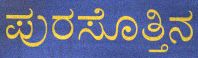
ಪುರಸೊತ್ತಿನ